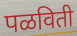
पळविती